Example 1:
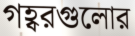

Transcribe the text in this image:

গহ্বরগুলোর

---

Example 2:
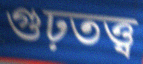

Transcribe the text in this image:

গুঢ়তত্ত্ব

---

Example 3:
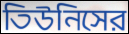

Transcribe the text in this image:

তিউনিসের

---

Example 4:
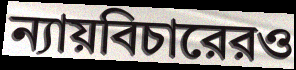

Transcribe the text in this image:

ন্যায়বিচারেরও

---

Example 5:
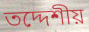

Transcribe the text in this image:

তদ্দেশীয়